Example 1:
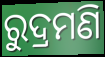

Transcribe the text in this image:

ରୁଦ୍ରମଣି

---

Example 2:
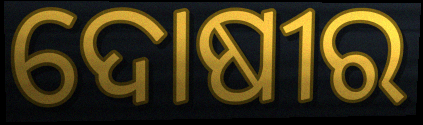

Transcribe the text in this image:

ଦୋଷୀର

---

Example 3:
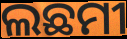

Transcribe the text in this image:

ଲଛମୀ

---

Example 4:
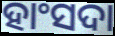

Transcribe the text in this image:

ହାଂସଦା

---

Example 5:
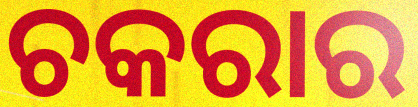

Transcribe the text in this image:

ଚକରାର